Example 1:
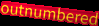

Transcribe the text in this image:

outnumbered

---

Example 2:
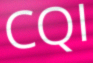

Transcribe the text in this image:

CQI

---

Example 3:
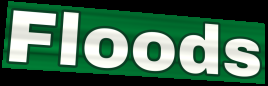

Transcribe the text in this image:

Floods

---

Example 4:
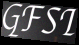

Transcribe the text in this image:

GFSI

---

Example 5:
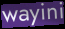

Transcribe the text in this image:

wayini